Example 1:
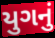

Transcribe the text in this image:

યુગનું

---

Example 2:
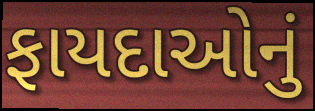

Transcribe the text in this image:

ફાયદાઓનું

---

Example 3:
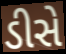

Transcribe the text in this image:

ડીસે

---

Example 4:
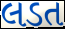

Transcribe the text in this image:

લડત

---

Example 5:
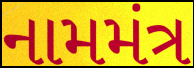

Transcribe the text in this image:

નામમંત્ર